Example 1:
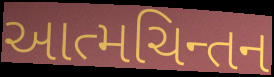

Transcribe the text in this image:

આત્મચિન્તન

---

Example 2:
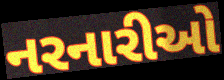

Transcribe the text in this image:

નરનારીઓ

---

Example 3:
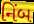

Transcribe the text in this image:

નિંબ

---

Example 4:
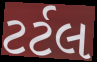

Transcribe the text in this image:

ટર્ટલ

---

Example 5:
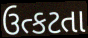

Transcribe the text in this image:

ઉત્કટતા